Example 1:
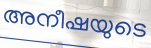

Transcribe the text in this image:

അനീഷയുടെ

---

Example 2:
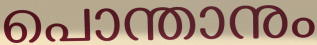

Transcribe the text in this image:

പൊന്താനും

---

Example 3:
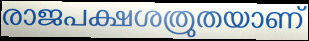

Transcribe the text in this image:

രാജപക്ഷശത്രുതയാണ്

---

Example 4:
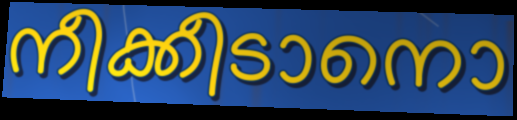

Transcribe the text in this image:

നീക്കീടാനൊ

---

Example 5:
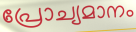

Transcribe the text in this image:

പ്രോച്യമാനം